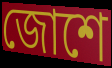
জোশে